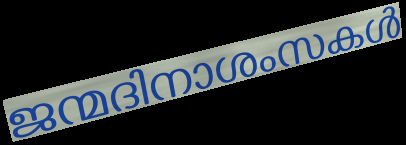
ജന്മദിനാശംസകൾ